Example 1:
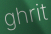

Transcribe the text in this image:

ghrit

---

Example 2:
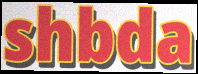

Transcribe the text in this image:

shbda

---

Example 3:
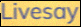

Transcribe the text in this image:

Livesay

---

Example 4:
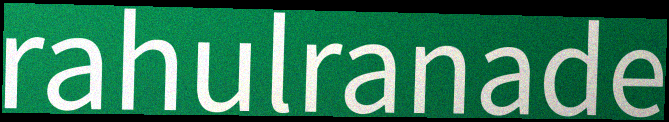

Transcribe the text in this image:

rahulranade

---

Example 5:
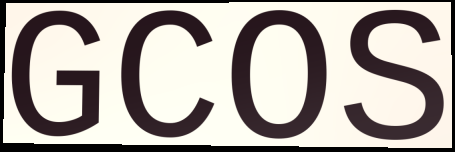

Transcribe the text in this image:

GCOS